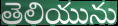
తెలియును